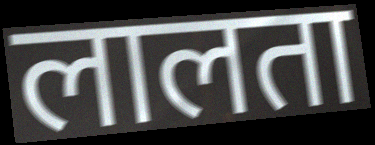
लालता